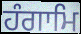
ਹੰਗਾਮਿ